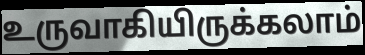
உருவாகியிருக்கலாம்